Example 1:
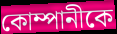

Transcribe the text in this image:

কোম্পানীকে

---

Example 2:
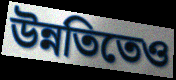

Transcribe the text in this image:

উন্নতিতেও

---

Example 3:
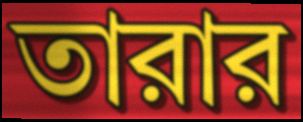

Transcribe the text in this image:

তারার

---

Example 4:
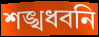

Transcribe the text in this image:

শঙ্খধবনি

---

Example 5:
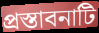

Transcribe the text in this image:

প্রস্তাবনাটি